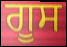
ਗੂਸ